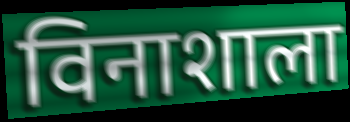
विनाशाला